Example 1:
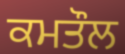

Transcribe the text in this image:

ਕਮਤੌਲ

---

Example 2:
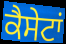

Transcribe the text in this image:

ਕੈਸੇਟਾਂ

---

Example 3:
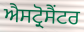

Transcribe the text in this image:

ਐਸਟ੍ਰੋਸੈਂਟਰ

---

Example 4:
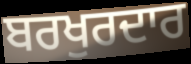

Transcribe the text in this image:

ਬਰਖੁਰਦਾਰ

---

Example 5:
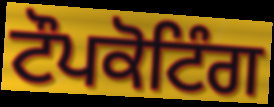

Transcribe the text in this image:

ਟੌਪਕੋਟਿੰਗ